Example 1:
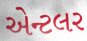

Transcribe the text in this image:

એન્ટલર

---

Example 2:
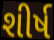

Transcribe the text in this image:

શીર્ષ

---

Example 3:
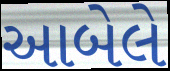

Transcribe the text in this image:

આબેલે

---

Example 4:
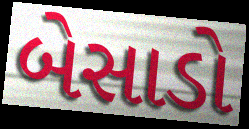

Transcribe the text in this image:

બેસાડો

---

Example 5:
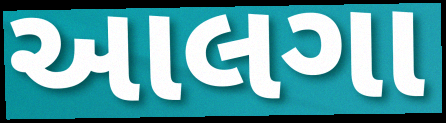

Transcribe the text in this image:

આલગા